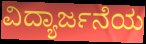
ವಿದ್ಯಾರ್ಜನೆಯ